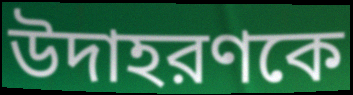
উদাহরণকে